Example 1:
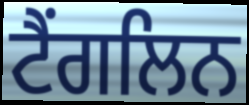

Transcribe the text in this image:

ਟੈਂਗਲਿਨ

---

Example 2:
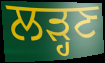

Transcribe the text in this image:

ਲੜ੍ਹਣ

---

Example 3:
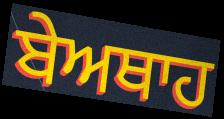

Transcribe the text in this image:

ਬੇਅਥਾਹ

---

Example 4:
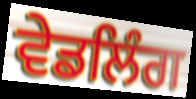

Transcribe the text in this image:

ਵੇਡਲਿੰਗ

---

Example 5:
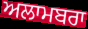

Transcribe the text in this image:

ਅਲਾਮਬਰਾ